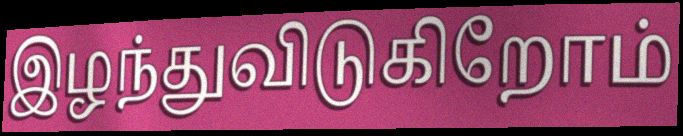
இழந்துவிடுகிறோம்